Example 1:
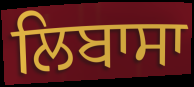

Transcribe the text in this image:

ਲਿਬਾਸਾ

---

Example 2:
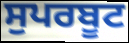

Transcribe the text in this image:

ਸੁਪਰਬੂਟ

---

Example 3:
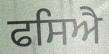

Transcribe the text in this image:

ਫਸਿਐ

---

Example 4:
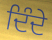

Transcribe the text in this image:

ਦਿੰਦੇ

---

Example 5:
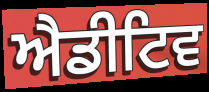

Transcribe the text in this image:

ਐਡੀਟਿਵ